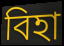
বিহা